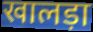
खालड़ा